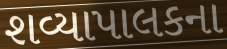
શવ્યાપાલકના